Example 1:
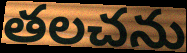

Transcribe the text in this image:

తలచను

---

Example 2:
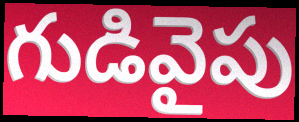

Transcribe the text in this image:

గుడివైపు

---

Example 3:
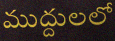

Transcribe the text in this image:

ముద్దులలో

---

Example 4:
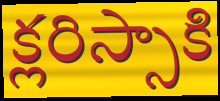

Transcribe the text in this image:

క్లరిస్సాకి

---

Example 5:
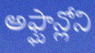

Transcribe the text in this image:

అఫ్ఘాన్లోని